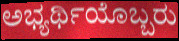
ಅಭ್ಯರ್ಥಿಯೊಬ್ಬರು